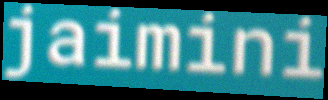
jaimini